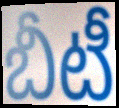
బీటీ